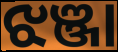
ଝଞ୍ଜା